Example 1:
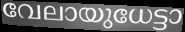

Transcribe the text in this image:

വേലായുധേട്ടാ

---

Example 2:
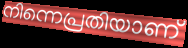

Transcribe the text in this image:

നിന്നെപ്രതിയാണ്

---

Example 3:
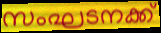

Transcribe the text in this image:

സംഘടനക്ക്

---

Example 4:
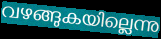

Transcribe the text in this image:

വഴങ്ങുകയില്ലെന്നു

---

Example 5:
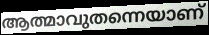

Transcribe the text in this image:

ആത്മാവുതന്നെയാണ്